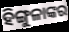
ହିଙ୍ଗୁଳାଙ୍କର